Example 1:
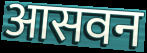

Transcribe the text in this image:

आसवन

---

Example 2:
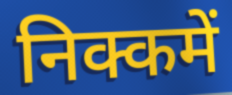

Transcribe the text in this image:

निक्कमें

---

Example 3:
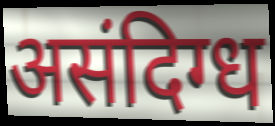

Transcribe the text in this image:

असंदिग्ध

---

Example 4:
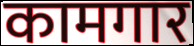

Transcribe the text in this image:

कामगार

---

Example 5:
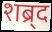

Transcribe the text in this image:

शब्र्द